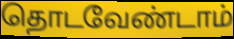
தொடவேண்டாம்